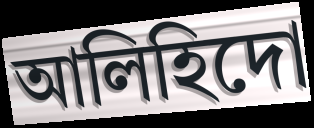
আলিহিদো